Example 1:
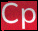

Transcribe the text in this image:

Cp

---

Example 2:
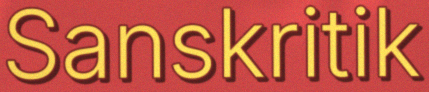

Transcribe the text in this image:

Sanskritik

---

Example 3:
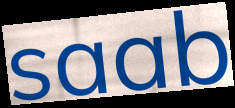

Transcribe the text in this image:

saab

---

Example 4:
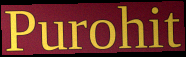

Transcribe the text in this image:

Purohit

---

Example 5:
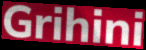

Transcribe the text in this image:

Grihini